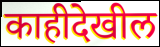
काहीदेखील